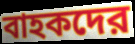
বাহকদের